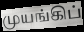
முயங்கிப்